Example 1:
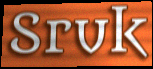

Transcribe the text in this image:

Sruk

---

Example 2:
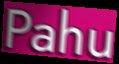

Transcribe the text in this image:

Pahu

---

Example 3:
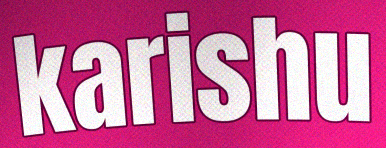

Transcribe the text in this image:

karishu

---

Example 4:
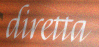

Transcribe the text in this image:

diretta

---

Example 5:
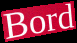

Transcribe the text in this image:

Bord